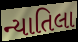
ન્યાતિલા